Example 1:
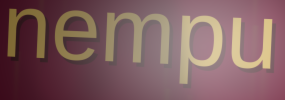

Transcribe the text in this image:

nempu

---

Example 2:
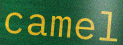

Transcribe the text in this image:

camel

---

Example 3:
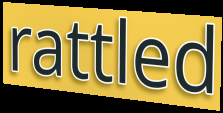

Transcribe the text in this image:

rattled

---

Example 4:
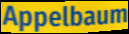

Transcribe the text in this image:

Appelbaum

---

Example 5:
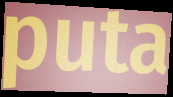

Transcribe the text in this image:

puta